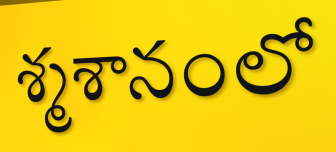
శ్మశానంలో